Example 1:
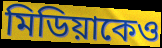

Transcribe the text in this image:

মিডিয়াকেও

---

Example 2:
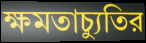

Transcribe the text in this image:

ক্ষমতাচ্যুতির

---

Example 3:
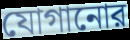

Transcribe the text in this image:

যোগানোর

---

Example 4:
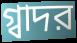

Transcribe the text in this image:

গ্বাদর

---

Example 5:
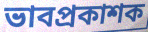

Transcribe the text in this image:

ভাবপ্রকাশক